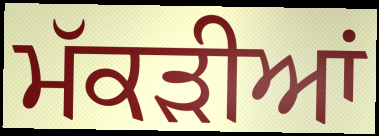
ਮੱਕੜੀਆਂ